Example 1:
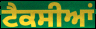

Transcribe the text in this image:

ਟੈਕਸੀਆਂ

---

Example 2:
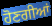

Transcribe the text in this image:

ਹੋਣਗੀਆਂ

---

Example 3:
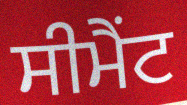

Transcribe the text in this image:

ਸੀਮੈੰਟ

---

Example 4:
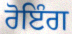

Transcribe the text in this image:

ਰੋਇੰਗ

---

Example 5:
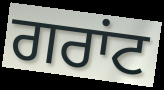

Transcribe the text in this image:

ਗਰਾਂਟ